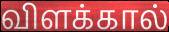
விளக்கால்